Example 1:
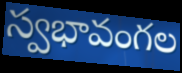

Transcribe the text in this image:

స్వభావంగల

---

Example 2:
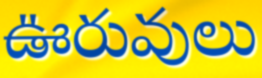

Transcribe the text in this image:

ఊరువులు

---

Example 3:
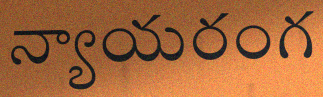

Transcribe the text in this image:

న్యాయరంగ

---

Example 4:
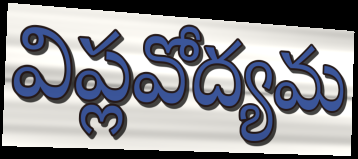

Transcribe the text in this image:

విప్లవోద్యమ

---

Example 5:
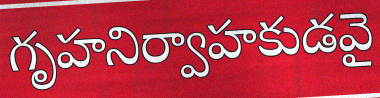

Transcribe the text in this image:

గృహనిర్వాహకుడవై